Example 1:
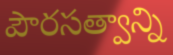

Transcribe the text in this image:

పౌరసత్వాన్ని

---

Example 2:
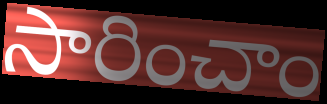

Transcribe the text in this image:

సారించాం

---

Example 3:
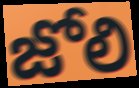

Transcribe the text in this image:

జోలి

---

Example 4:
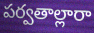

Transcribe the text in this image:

పర్వతాల్లారా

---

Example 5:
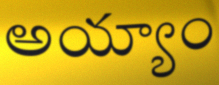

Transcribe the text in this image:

అయ్యాం